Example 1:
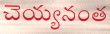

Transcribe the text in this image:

చెయ్యనంత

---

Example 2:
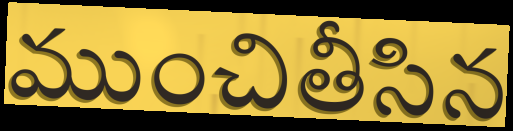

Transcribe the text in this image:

ముంచితీసిన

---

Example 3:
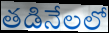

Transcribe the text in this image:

తడినేలలో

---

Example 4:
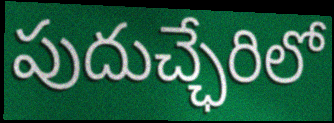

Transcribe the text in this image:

పుదుచ్ఛేరిలో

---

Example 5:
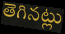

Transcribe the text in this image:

తెగినట్లు